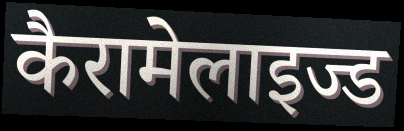
कैरामेलाइज्ड